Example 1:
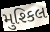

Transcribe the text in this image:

મુશ્કિલ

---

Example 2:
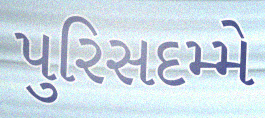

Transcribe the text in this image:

પુરિસદમ્મે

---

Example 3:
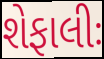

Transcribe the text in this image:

શેફાલીઃ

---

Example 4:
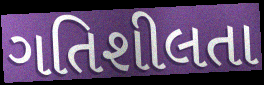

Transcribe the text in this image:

ગતિશીલતા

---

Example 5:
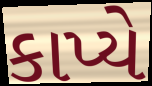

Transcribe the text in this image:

કાપ્યે